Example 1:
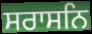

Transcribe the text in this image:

ਸਰਾਸਨਿ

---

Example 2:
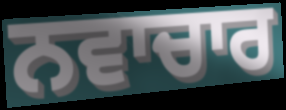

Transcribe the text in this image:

ਨਵਾਚਾਰ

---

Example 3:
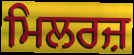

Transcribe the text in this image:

ਮਿਲਰਜ਼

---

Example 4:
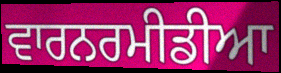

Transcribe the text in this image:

ਵਾਰਨਰਮੀਡੀਆ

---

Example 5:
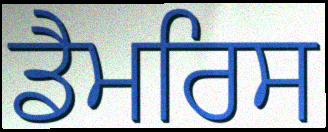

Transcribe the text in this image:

ਡੈਮਰਿਸ